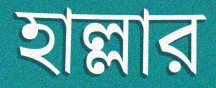
হাল্লার